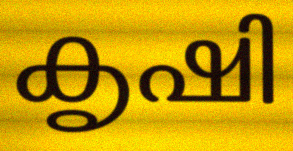
കൃഷി